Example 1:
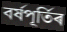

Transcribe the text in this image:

বৰ্ষপূৰ্তিৰ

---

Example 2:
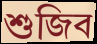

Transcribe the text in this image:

শুজিব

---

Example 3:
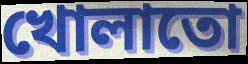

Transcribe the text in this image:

খোলাতো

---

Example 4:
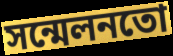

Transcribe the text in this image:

সন্মেলনতো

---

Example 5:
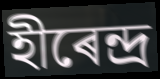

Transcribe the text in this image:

হীৰেন্দ্ৰ